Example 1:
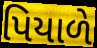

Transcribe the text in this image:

પિયાળે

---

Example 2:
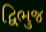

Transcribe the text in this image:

દ્વિભુજ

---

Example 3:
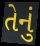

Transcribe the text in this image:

તેનું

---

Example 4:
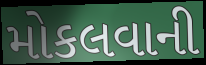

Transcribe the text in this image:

મોકલવાની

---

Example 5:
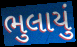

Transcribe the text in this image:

ભુલાયું